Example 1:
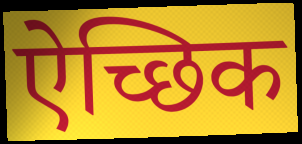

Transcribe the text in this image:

ऐच्छिक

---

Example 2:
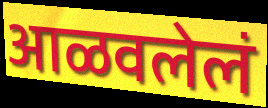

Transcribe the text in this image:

आळवलेलं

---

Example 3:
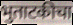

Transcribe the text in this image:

भुताटकीचा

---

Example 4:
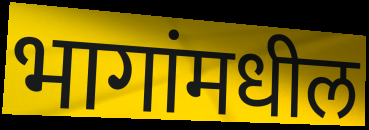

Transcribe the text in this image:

भागांमधील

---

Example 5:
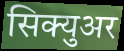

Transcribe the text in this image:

सिक्युअर